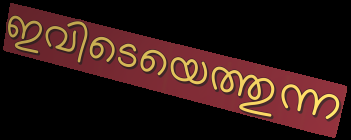
ഇവിടെയെത്തുന്ന